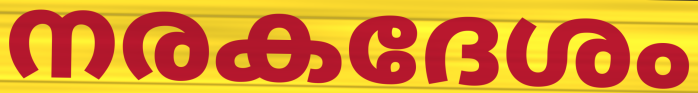
നരകദേശം